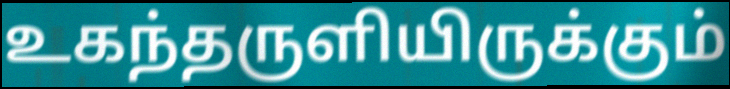
உகந்தருளியிருக்கும்